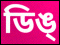
ডিঙ্